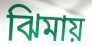
ঝিমায়